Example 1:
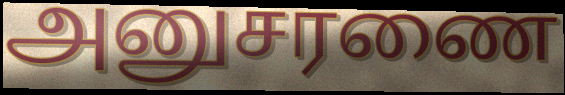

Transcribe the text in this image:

அனுசரணை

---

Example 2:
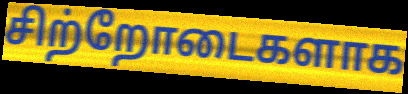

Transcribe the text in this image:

சிற்றோடைகளாக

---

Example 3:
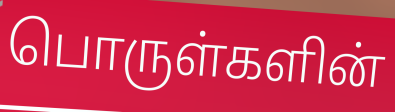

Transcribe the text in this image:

பொருள்களின்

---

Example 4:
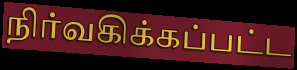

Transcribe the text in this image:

நிர்வகிக்கப்பட்ட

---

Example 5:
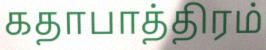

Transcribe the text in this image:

கதாபாத்திரம்